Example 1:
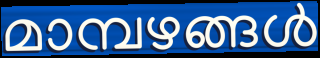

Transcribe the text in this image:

മാമ്പഴങ്ങൾ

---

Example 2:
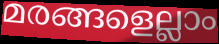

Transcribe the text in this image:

മരങ്ങളെല്ലാം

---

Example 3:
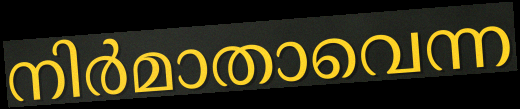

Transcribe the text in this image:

നിർമാതാവെന്ന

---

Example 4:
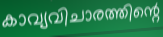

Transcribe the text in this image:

കാവ്യവിചാരത്തിന്റെ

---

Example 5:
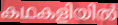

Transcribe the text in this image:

കഥകളിയിൽ